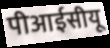
पीआईसीयू